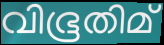
വിഭൂതിമ്